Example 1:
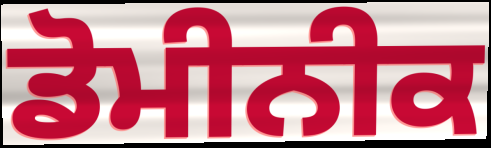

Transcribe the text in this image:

ਡੋਮੀਨੀਕ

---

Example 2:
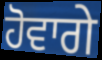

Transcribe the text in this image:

ਹੋਵਾਗੇ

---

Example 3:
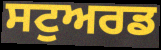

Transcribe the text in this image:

ਸਟੁਅਰਡ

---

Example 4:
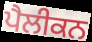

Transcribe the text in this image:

ਪੈਲੀਕਨ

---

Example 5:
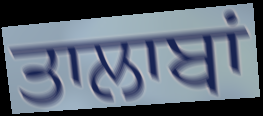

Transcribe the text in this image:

ਤਾਲਾਬਾਂ